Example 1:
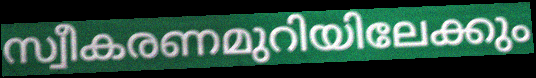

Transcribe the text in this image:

സ്വീകരണമുറിയിലേക്കും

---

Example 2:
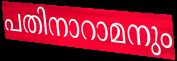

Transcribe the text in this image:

പതിനാറാമനും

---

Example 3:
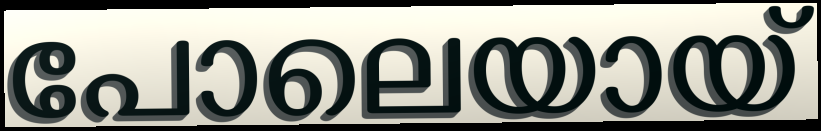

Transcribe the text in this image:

പോലെയായ്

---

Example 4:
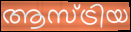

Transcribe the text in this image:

ആസ്ട്രിയ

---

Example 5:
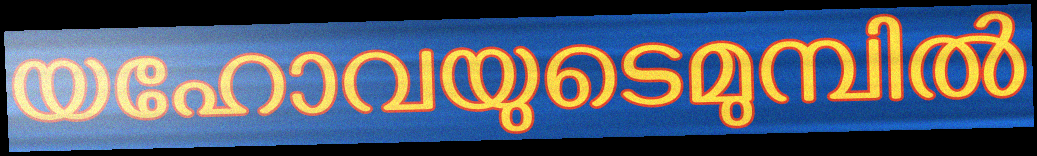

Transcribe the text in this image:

യഹോവയുടെമുമ്പിൽ